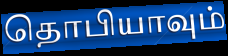
தொபியாவும்